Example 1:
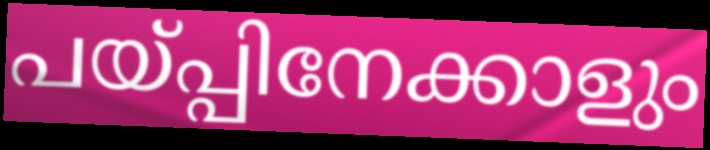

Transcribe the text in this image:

പയ്പ്പിനേക്കാളും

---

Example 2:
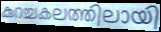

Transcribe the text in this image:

കുറച്ചകലത്തിലായി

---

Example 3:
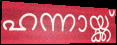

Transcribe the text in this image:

ഹന്നായ്ക്ക്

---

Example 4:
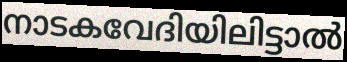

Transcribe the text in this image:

നാടകവേദിയിലിട്ടാൽ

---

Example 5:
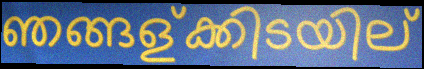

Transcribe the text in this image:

ഞങ്ങള്ക്കിടയില്